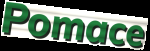
Pomace